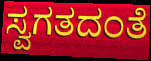
ಸ್ವಗತದಂತೆ